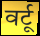
वर्टू